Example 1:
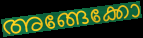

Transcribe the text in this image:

അങ്ങേക്കോ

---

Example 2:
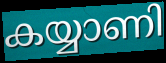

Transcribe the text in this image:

കയ്യാണി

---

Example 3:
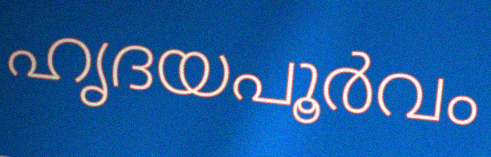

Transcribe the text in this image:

ഹൃദയപൂർവം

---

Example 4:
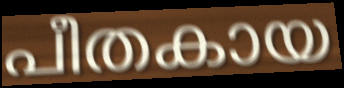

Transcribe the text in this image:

പീതകായ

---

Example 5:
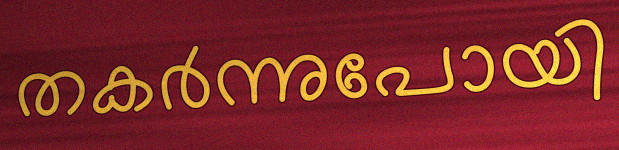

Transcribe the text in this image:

തകർന്നുപോയി